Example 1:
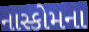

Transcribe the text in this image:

નાસ્કોમના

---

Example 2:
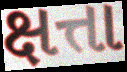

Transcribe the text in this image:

ક્ષત્તા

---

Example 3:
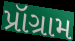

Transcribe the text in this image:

પ્રૉગ્રામ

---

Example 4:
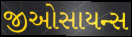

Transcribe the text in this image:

જીઓસાયન્સ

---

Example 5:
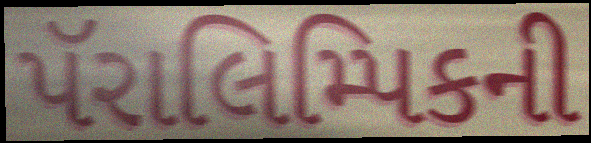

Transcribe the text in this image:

પૅરાલિમ્પિકની